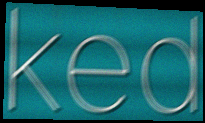
ked